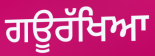
ਗਊਰੱਖਿਆ